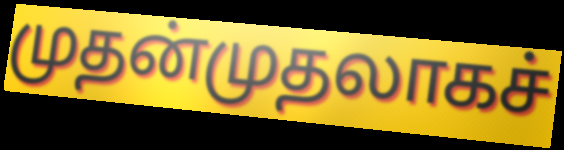
முதன்முதலாகச்